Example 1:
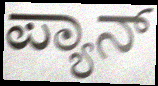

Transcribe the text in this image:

ಪ್ಯಾನ್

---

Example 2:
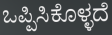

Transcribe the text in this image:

ಒಪ್ಪಿಸಿಕೊಳ್ಳದೆ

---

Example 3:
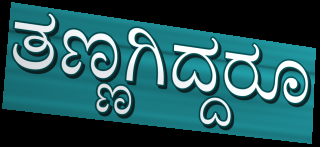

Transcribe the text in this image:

ತಣ್ಣಗಿದ್ದರೂ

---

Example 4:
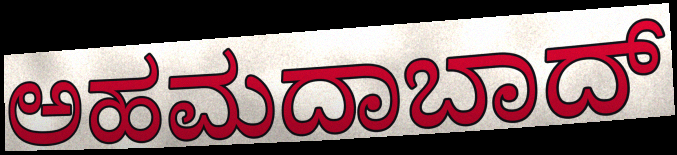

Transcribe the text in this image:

ಅಹಮದಾಬಾದ್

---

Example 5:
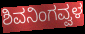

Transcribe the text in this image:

ಶಿವನಿಂಗವ್ವಳ